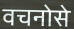
वचनोसे